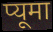
प्यूमा